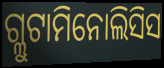
ଗ୍ଲୁଟାମିନୋଲିସିସ